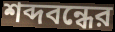
শব্দবন্ধের